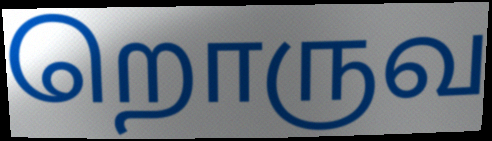
றொருவ